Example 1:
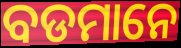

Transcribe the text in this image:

ବଡମାନେ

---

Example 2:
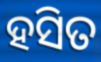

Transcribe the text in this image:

ହସିତ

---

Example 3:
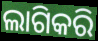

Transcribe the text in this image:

ଲାଗିକରି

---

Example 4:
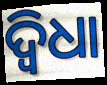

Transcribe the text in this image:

ଦ୍ୱିଧା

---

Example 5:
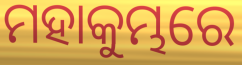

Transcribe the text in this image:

ମହାକୁମ୍ଭରେ